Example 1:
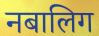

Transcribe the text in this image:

नबालिग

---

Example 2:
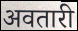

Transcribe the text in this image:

अवतारी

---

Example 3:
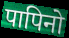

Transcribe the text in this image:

पापिनो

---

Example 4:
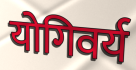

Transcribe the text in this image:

योगिवर्य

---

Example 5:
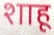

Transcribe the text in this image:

शाहू